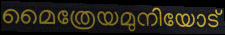
മൈത്രേയമുനിയോട്